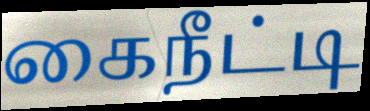
கைநீட்டி